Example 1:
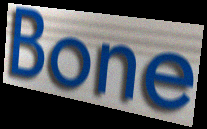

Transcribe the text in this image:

Bone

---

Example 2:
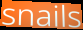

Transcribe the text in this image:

snails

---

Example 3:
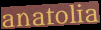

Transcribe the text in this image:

anatolia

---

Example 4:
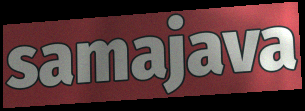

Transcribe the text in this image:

samajava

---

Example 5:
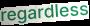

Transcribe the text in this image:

regardless